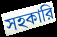
সহকারি